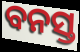
ବନସ୍ତ